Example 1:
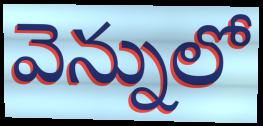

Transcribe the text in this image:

వెన్నులో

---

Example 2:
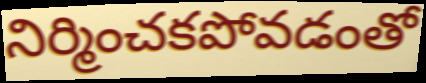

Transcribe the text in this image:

నిర్మించకపోవడంతో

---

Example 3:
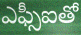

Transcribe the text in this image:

ఎఫ్సీఐతో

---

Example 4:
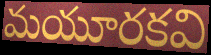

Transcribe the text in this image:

మయూరకవి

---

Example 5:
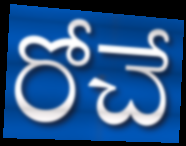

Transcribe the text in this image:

రోచే